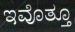
ಇವೊತ್ತೂ